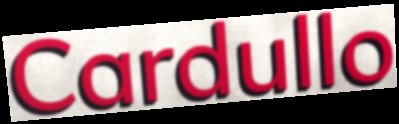
Cardullo